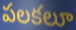
పలకలూ